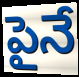
పైనే